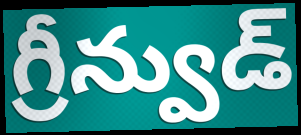
గ్రీన్వుడ్